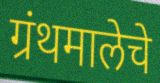
ग्रंथमालेचे